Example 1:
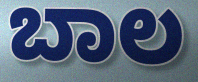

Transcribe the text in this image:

ಬಾಲ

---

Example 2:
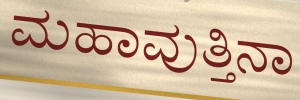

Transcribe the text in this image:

ಮಹಾವುತ್ತಿನಾ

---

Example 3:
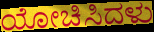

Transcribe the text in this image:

ಯೋಚಿಸಿದಳು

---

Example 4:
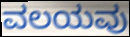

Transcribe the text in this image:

ವಲಯವು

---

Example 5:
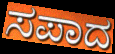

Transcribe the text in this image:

ಸಪಾದ